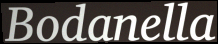
Bodanella